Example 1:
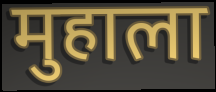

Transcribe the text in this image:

मुहाला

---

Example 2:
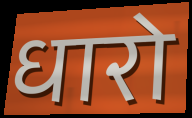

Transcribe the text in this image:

धारो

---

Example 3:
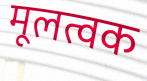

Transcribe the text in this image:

मूलत्वक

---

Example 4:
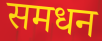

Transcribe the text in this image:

समधन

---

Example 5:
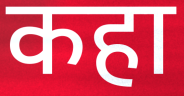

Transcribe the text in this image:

कहा